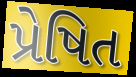
પ્રેષિત